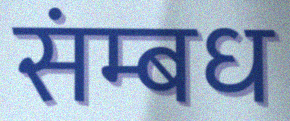
संम्बध